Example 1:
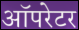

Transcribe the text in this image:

ऑपरेटर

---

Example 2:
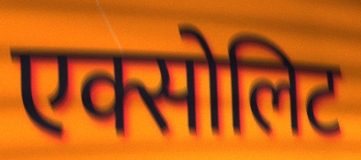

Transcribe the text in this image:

एक्सोलिट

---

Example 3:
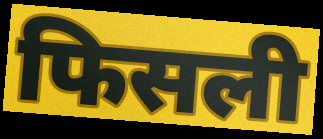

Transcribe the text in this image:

फिसली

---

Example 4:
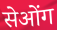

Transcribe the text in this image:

सेओंग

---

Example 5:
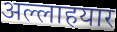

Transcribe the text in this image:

अल्लाहयार